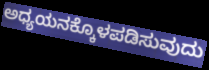
ಅಧ್ಯಯನಕ್ಕೊಳಪಡಿಸುವುದು